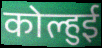
कोल्हुई